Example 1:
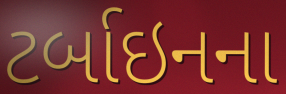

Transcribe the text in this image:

ટર્બાઇનના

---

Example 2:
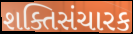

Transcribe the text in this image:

શક્તિસંચારક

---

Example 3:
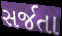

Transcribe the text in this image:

સર્જતા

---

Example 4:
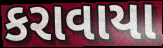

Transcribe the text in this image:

કરાવાયા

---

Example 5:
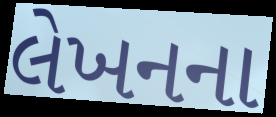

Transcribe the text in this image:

લેખનના